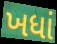
ખધાં